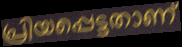
പ്രിയപ്പെട്ടതാണ്